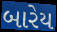
બારેય